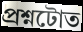
প্ৰশ্নটোত